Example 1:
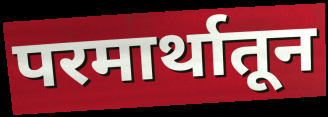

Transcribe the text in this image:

परमार्थातून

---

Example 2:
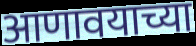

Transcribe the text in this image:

आणावयाच्या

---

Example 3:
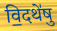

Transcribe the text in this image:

वि॒दथे॑षु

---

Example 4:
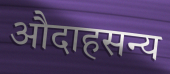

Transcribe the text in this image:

औदाहसन्य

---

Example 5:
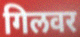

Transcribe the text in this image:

गिलवर